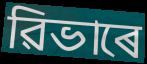
ৱিভাৰে